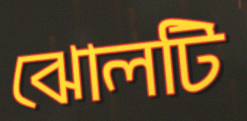
ঝোলটি